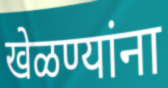
खेळण्यांना